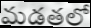
మడతలో